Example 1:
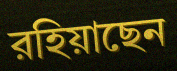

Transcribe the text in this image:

রহিয়াছেন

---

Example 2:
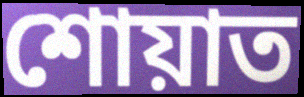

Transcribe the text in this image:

শোয়াত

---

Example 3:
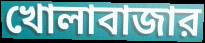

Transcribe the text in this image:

খোলাবাজার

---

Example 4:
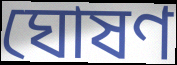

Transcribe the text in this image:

ঘোষণ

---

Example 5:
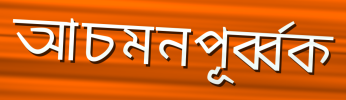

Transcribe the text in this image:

আচমনপূর্ব্বক